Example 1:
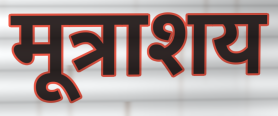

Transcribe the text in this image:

मूत्राशय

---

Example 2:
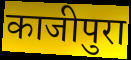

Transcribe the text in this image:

काजीपुरा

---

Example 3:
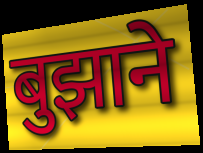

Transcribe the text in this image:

बुझाने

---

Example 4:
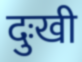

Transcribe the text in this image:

दुःखी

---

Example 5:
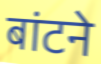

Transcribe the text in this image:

बांटने